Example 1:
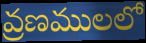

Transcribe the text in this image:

వ్రణములలో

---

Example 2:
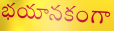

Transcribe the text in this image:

భయానకంగా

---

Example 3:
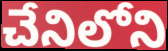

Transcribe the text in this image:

చేనిలోని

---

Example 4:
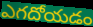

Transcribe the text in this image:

ఎగదోయడం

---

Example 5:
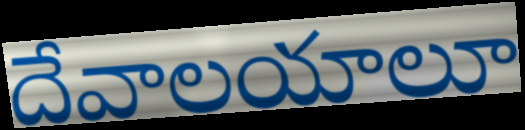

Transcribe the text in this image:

దేవాలయాలూ